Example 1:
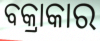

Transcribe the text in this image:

ବକ୍ରାକାର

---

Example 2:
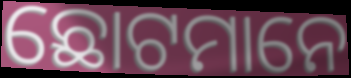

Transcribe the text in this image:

ଛୋଟମାନେ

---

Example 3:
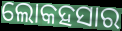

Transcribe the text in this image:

ଲୋକହସାର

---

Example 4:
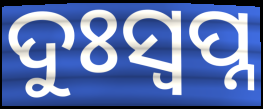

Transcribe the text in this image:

ଦୁଃସ୍ଵପ୍ନ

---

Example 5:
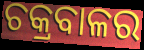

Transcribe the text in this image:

ଚକ୍ରବାଳର